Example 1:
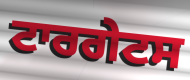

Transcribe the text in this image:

ਟਾਰਗੇਟਸ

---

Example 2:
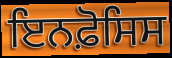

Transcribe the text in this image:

ਇਨਫ਼ੋਸਿਸ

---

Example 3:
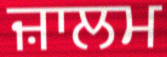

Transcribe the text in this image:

ਜ਼ਾਲਮ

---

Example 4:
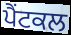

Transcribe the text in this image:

ਪੈਂਟਕਲ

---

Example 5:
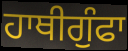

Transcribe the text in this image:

ਹਾਥੀਗੁੰਫਾ